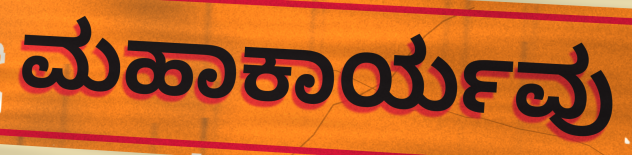
ಮಹಾಕಾರ್ಯವು